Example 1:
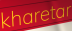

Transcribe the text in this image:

kharetar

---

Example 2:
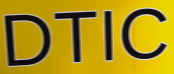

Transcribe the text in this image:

DTIC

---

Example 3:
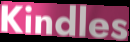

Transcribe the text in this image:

Kindles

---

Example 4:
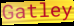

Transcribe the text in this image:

Gatley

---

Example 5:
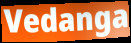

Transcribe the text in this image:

Vedanga